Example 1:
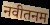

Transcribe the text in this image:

नवीतनम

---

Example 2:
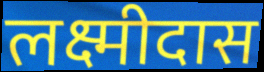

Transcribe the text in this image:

लक्ष्मीदास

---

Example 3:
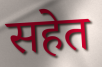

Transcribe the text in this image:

सहेत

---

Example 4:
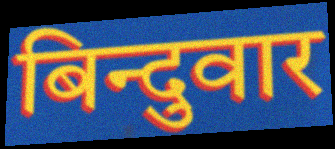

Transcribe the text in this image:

बिन्‍दुवार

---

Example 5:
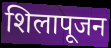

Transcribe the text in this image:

शिलापूजन